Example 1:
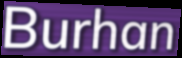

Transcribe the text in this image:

Burhan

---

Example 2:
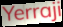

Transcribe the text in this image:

Yerraji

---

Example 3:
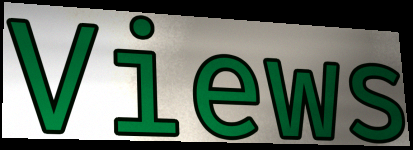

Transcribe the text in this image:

Views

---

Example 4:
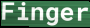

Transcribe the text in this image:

Finger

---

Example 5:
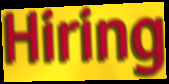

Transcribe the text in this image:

Hiring